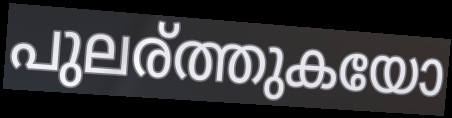
പുലര്ത്തുകയോ